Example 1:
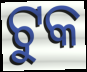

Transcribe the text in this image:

ଟୁକ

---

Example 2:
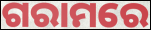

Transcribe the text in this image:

ଗରାମରେ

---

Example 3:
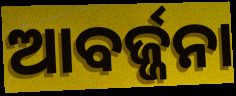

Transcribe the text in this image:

ଆବର୍ଜ୍ଜନା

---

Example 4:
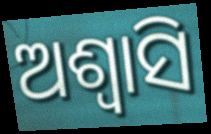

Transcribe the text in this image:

ଅଶ୍ୱାସି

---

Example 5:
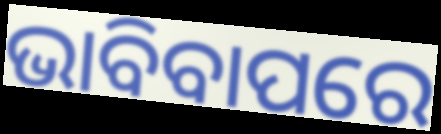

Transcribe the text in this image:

ଭାବିବାପରେ